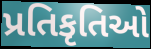
પ્રતિકૃતિઓ